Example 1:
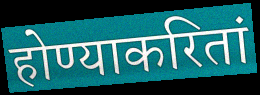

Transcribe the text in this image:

होण्याकरितां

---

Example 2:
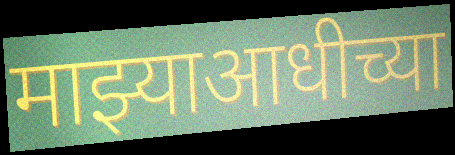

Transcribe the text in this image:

माझ्याआधीच्या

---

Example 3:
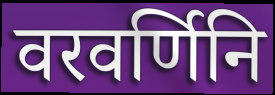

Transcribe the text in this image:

वरवर्णिनि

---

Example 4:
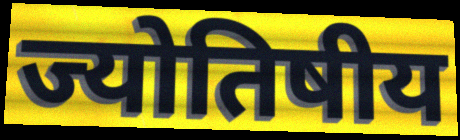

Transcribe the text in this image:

ज्योतिषीय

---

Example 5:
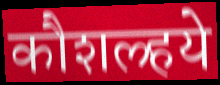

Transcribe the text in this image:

कौशल्हये